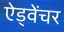
ऐड्वेंचर